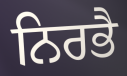
ਨਿਰਭੈ